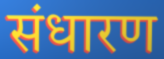
संधारण